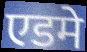
एडमे